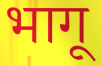
भागू